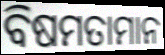
ବିଷମତାମାନ